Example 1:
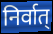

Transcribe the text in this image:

निर्वात्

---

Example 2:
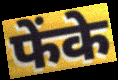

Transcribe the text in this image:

फेंके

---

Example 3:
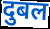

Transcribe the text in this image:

दुबल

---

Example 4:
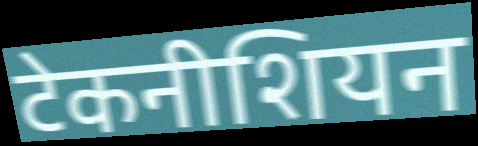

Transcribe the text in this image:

टेकनीशियन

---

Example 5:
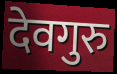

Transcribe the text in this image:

देवगुरु